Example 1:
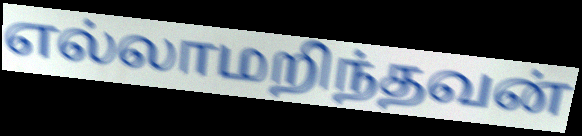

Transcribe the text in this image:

எல்லாமறிந்தவன்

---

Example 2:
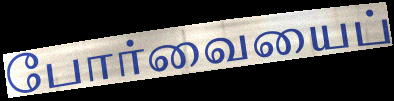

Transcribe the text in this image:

போர்வையைப்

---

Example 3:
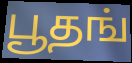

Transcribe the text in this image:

பூதங்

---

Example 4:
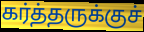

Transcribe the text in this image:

கர்த்தருக்குச்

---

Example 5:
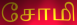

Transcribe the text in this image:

சோமி